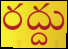
రద్దు